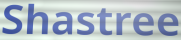
Shastree